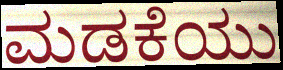
ಮಡಕೆಯು